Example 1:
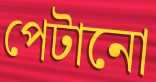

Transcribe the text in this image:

পেটানো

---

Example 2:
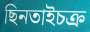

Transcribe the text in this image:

ছিনতাইচক্র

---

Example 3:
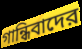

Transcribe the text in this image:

গান্ধিবাদের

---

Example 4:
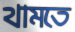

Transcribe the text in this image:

থামতে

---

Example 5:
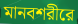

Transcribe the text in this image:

মানবশরীরে